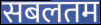
सबलतम